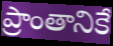
ప్రాంతానికే